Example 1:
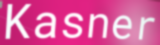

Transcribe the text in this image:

Kasner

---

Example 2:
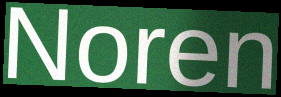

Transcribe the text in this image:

Noren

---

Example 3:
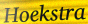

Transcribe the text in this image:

Hoekstra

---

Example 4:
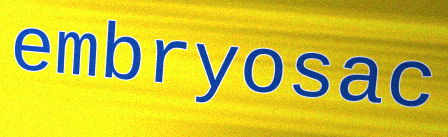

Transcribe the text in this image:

embryosac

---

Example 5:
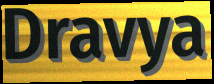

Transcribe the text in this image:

Dravya